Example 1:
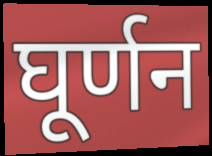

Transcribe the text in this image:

घूर्णन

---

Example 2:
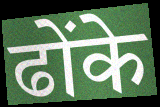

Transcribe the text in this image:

ढोंके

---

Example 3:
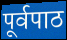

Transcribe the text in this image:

पूर्वपाठ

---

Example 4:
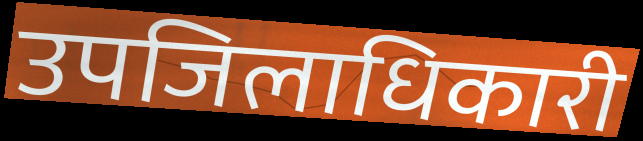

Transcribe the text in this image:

उपजिलाधिकारी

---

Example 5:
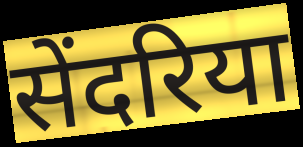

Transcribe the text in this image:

सेंदरिया